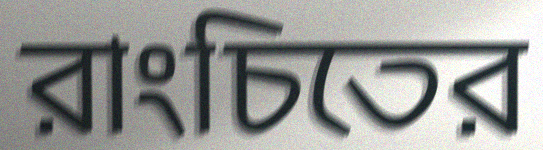
রাংচিতের